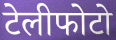
टेलीफोटो